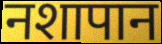
नशापान